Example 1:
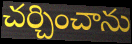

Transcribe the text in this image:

చర్చించాను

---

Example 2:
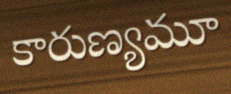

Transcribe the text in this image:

కారుణ్యమూ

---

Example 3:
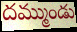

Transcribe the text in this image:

దమ్ముండు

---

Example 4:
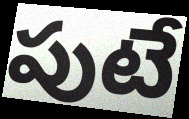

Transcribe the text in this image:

పుటే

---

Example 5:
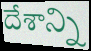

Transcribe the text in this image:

దేశాన్ని